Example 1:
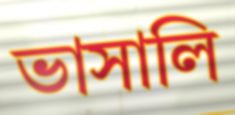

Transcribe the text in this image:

ভাসালি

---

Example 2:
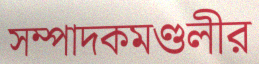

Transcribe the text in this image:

সম্পাদকমণ্ডলীর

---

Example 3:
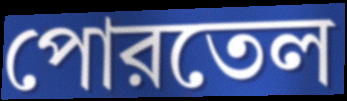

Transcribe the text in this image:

পোরতেল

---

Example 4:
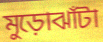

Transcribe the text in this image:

মুড়োঝাঁটা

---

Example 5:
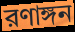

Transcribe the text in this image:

রণাঙ্গন